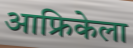
आफ्रिकेला